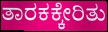
ತಾರಕಕ್ಕೇರಿತು